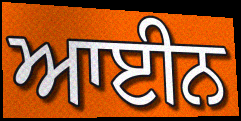
ਆਈਨ